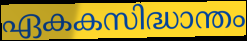
ഏകകസിദ്ധാന്തം